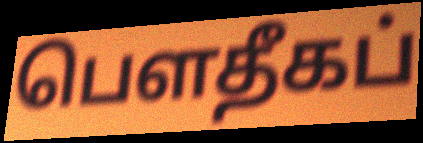
பௌதீகப்